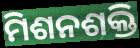
ମିଶନଶକ୍ତି